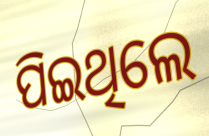
ପିଇଥିଲେ